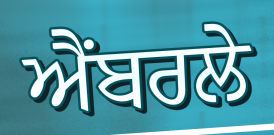
ਐਂਬਰਲੇ